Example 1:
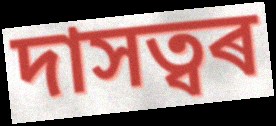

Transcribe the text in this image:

দাসত্বৰ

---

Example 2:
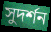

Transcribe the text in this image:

সুদৰ্শন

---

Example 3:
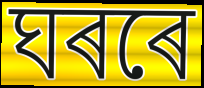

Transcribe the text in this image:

ঘৰৰে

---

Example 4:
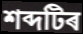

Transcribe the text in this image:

শব্দটিৰ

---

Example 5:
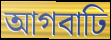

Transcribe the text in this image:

আগবাঢি